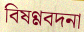
বিষণ্ণবদনা